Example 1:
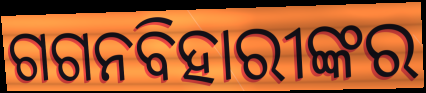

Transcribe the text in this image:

ଗଗନବିହାରୀଙ୍କର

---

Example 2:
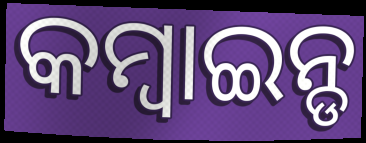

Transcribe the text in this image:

କମ୍ବାଇନ୍ଡ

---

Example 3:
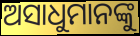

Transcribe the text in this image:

ଅସାଧୁମାନଙ୍କୁ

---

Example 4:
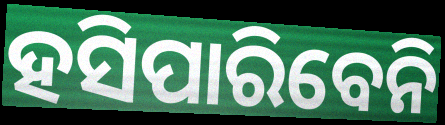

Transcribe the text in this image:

ହସିପାରିବେନି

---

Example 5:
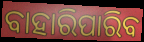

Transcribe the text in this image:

ବାହାରିପାରିବ